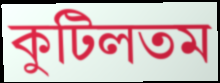
কুটিলতম